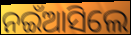
ନଇଁଆସିଲେ